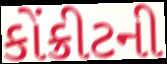
કોંક્રીટની